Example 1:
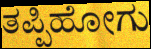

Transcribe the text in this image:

ತಪ್ಪಿಹೋಗು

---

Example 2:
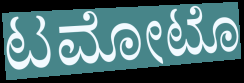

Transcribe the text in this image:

ಟಮೋಟೊ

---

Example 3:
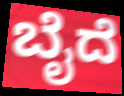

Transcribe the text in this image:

ಬೈದೆ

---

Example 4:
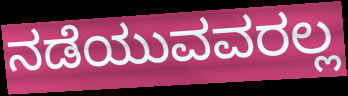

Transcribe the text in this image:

ನಡೆಯುವವರಲ್ಲ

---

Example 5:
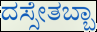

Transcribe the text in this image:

ದಸ್ಸೇತಬ್ಬಾ